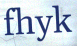
fhyk